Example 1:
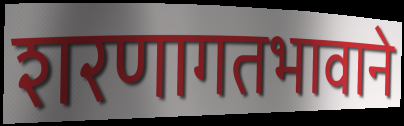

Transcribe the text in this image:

शरणागतभावाने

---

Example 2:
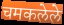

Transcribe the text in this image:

चमकलेले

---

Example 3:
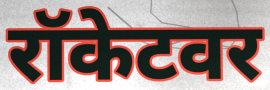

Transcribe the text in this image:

रॉकेटवर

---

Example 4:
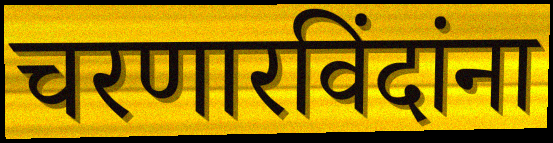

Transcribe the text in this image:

चरणारविंदांना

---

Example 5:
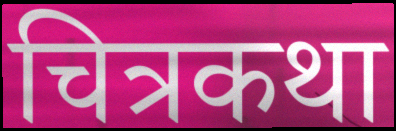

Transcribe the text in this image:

चित्रकथा